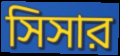
সিসার